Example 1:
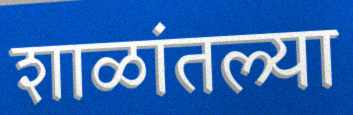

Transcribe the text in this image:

शाळांतल्या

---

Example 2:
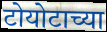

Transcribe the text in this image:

टोयोटाच्या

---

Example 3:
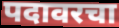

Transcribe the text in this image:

पदावरचा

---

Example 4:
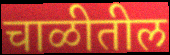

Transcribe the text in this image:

चाळीतील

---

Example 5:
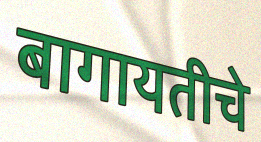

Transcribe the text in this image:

बागायतीचे